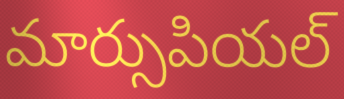
మార్సుపియల్